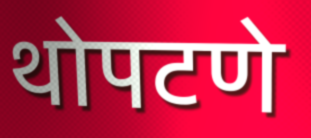
थोपटणे